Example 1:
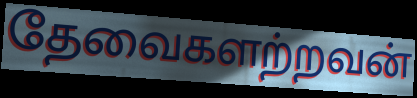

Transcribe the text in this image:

தேவைகளற்றவன்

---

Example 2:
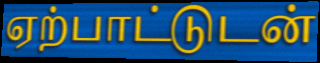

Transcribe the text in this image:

ஏற்பாட்டுடன்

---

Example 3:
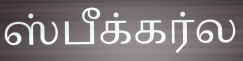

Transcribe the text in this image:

ஸ்பீக்கர்ல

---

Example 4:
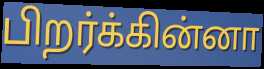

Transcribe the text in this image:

பிறர்க்கின்னா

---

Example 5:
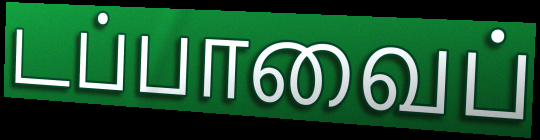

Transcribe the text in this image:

டப்பாவைப்